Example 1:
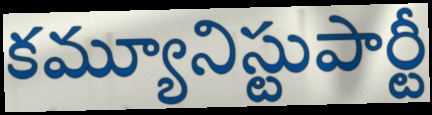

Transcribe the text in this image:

కమ్యూనిస్టుపార్టీ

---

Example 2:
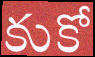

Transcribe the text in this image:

కుకో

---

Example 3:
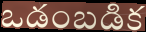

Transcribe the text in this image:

ఒడంబడిక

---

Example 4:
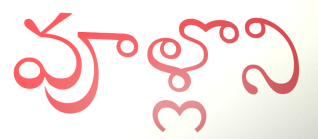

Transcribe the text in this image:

వూళ్లొని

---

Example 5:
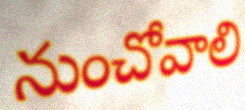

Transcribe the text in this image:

నుంచోవాలి